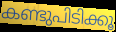
കണ്ടുപിടിക്കൂ